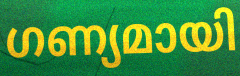
ഗണ്യമായി